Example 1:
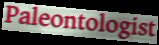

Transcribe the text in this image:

Paleontologist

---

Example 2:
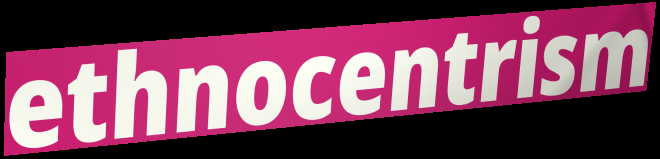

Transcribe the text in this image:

ethnocentrism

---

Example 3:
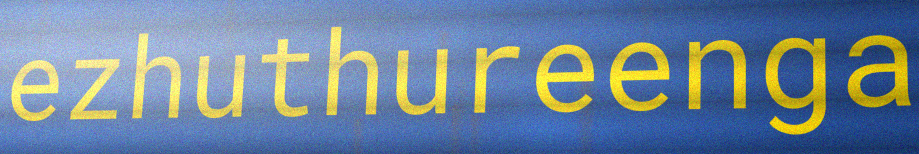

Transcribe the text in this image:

ezhuthureenga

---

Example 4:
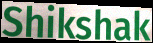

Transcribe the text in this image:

Shikshak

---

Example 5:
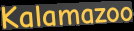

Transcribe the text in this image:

Kalamazoo